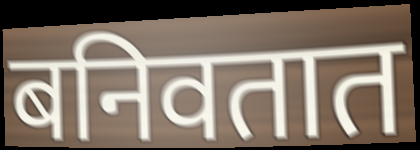
बनिवतात